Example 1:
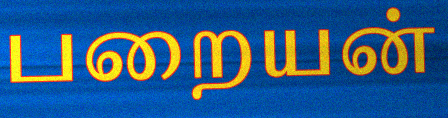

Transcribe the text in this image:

பறையன்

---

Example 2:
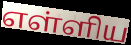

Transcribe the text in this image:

எள்ளிய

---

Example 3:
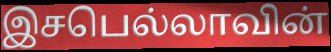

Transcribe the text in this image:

இசபெல்லாவின்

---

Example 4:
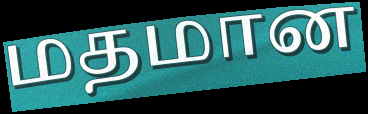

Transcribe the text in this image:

மதமான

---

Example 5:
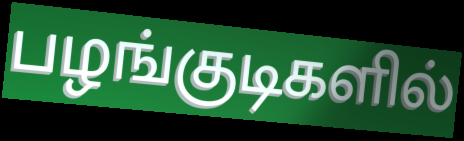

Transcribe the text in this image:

பழங்குடிகளில்